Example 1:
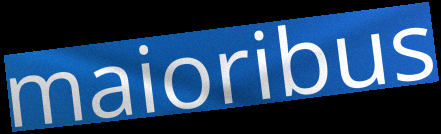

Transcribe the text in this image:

maioribus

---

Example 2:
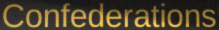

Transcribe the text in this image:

Confederations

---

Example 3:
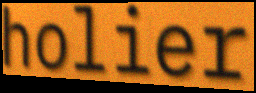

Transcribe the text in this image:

holier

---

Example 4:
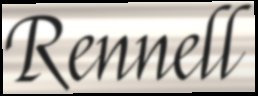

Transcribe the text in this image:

Rennell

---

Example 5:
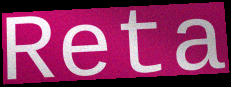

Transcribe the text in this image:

Reta